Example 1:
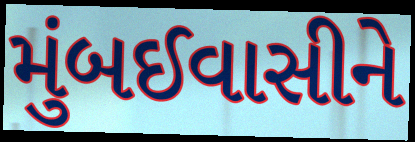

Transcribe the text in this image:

મુંબઈવાસીને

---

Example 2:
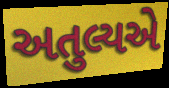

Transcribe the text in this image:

અતુલ્યએ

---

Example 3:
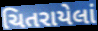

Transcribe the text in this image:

ચિતરાયેલાં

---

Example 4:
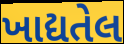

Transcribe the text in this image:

ખાદ્યતેલ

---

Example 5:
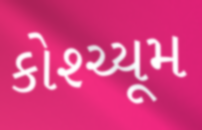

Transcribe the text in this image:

કોશ્ચ્યૂમ